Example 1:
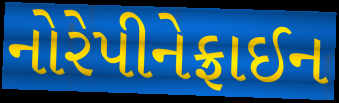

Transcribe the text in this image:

નોરેપીનેફ્રાઈન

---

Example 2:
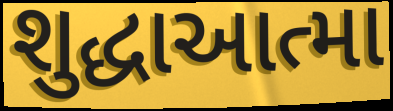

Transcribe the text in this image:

શુદ્ધાઆત્મા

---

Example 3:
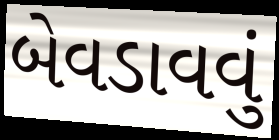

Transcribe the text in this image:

બેવડાવવું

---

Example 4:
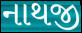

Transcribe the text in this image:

નાથજી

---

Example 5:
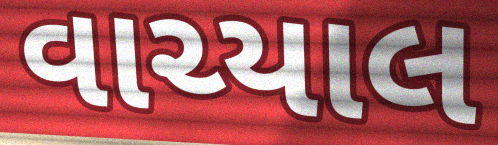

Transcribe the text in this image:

વાચ્યાલ